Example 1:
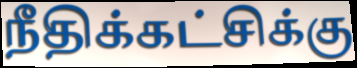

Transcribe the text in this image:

நீதிக்கட்சிக்கு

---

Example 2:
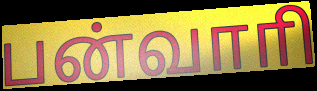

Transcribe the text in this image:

பன்வாரி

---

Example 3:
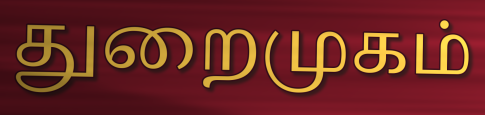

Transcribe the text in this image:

துறைமுகம்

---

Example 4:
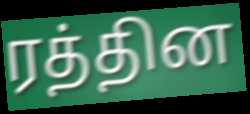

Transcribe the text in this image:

ரத்தின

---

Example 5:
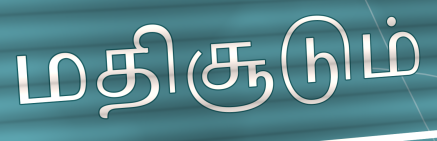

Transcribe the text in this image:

மதிசூடும்